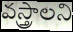
వస్త్రాలని